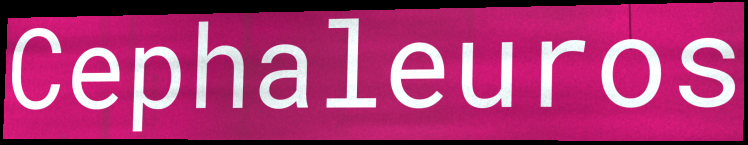
Cephaleuros